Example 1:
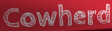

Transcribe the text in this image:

Cowherd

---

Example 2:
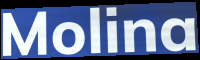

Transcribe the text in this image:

Molina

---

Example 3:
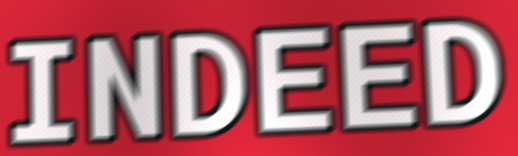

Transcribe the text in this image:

INDEED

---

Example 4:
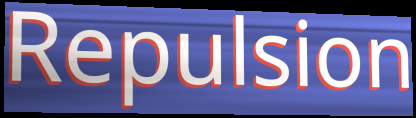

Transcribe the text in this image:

Repulsion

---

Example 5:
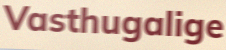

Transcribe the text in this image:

Vasthugalige